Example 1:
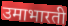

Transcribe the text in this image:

उमाभारती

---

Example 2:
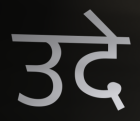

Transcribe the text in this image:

उदे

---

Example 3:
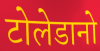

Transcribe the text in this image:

टोलेडानो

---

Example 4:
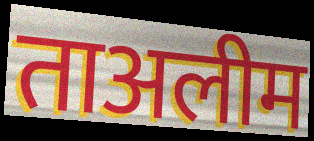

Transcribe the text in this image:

ताअलीम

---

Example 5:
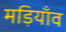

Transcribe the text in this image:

मड़ियाँव